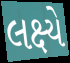
લક્ષ્યે